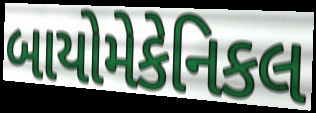
બાયોમેકેનિકલ